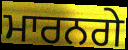
ਮਾਰਨਗੇ